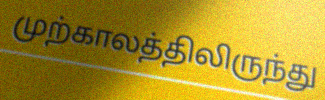
முற்காலத்திலிருந்து